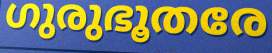
ഗുരുഭൂതരേ